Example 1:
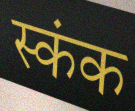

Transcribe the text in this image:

स्कंक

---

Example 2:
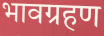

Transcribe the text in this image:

भावग्रहण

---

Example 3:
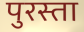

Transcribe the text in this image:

पुरस्ता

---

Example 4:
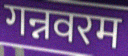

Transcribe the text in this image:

गन्नवरम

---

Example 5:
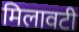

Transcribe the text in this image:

मिलावटी